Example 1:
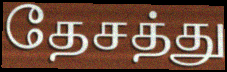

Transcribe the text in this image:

தேசத்து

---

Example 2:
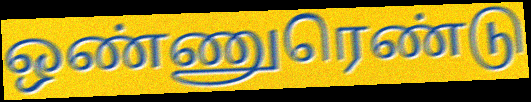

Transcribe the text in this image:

ஒண்ணுரெண்டு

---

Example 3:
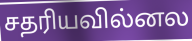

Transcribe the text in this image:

சதரியவில்னல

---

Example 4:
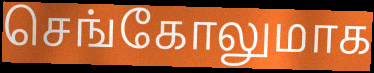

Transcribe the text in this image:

செங்கோலுமாக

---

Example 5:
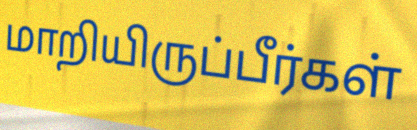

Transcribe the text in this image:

மாறியிருப்பீர்கள்